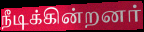
நீடிக்கின்றனர்